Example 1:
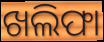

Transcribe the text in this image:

ଖଲିଫା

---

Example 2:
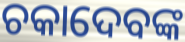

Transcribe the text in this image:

ଚକାଦେବଙ୍କ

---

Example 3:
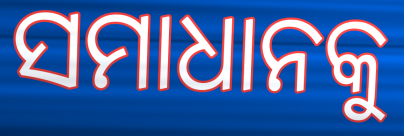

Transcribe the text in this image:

ସମାଧାନକୁ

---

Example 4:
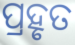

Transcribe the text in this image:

ପ୍ରହୃତ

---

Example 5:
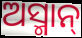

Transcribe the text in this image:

ଅସ୍ମାନ୍